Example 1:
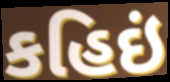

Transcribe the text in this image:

કહિઇં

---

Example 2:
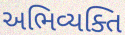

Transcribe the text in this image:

અભિવ્યક્તિ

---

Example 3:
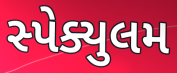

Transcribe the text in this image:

સ્પેક્યુલમ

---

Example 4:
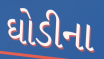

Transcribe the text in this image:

ઘોડીના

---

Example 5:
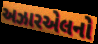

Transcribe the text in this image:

અઝારએલનો